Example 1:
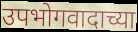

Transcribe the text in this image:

उपभोगवादाच्या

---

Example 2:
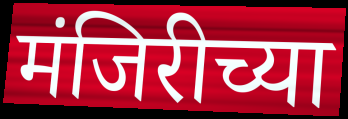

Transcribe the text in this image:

मंजिरीच्या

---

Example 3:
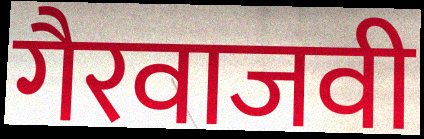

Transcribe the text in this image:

गैरवाजवी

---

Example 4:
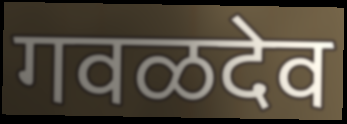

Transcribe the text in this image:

गवळदेव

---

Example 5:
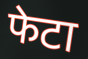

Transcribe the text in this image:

फेटा